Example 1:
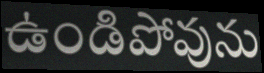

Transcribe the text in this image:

ఉండిపోవును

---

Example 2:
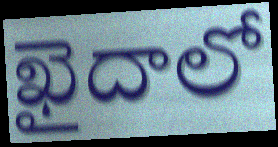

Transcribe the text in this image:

ఖైదాలో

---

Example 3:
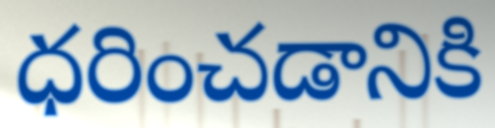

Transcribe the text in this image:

ధరించడానికి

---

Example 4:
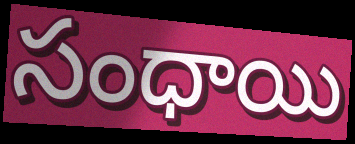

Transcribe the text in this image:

సంధాయి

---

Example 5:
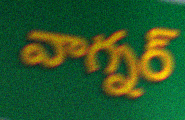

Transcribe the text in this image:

వాగ్నర్